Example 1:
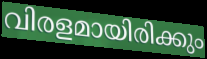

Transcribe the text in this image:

വിരളമായിരിക്കും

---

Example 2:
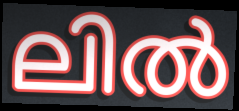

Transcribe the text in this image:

ലിൽ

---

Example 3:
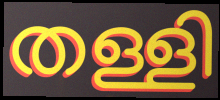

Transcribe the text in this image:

തള്ളി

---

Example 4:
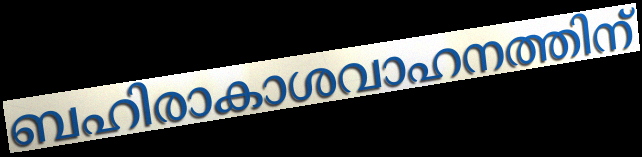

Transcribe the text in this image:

ബഹിരാകാശവാഹനത്തിന്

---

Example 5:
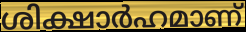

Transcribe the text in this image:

ശിക്ഷാർഹമാണ്